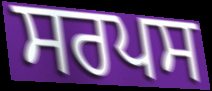
ਸਰਪਸ